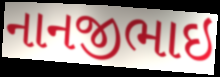
નાનજીભાઇ